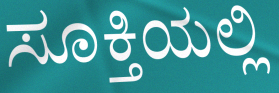
ಸೂಕ್ತಿಯಲ್ಲಿ